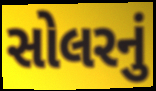
સોલરનું